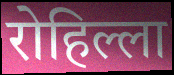
रोहिल्ला